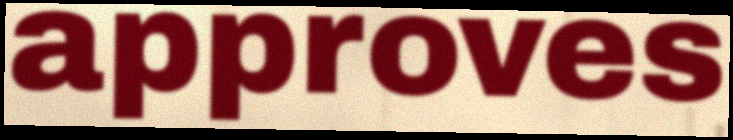
approves